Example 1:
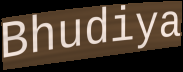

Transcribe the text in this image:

Bhudiya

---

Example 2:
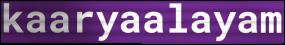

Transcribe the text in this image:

kaaryaalayam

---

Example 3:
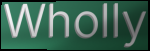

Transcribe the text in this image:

Wholly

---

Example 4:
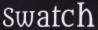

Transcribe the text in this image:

Swatch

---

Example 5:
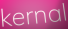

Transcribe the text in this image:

kernal